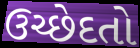
ઉચ્છેદતો